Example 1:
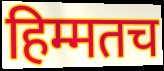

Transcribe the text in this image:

हिम्मतच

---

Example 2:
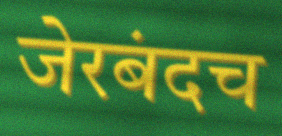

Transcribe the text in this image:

जेरबंदच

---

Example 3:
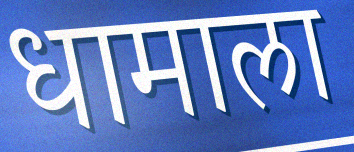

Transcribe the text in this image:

धामाला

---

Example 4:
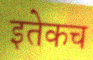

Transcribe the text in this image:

इतेकच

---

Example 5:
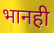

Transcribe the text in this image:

भानही